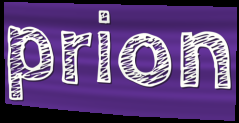
prion